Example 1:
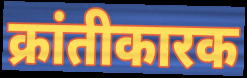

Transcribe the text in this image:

क्रांतीकारक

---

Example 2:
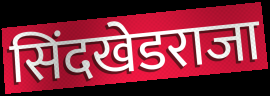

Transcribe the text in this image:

सिंदखेडराजा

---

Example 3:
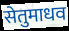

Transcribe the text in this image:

सेतुमाधव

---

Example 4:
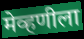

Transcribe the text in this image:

मेव्हणीला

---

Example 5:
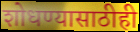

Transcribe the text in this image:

शोधण्यासाठीही